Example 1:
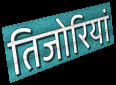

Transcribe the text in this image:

तिजोरियां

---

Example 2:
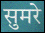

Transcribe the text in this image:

सुमरे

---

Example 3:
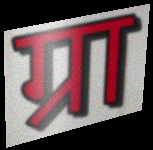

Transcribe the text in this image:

ग्रा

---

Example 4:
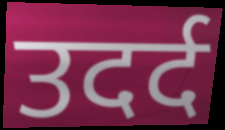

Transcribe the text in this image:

उदर्द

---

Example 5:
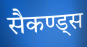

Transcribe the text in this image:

सैकण्ड्स